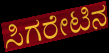
ಸಿಗರೇಟಿನ